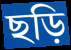
ছড়ি